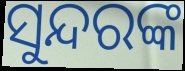
ସୁନ୍ଦରଙ୍କ